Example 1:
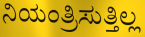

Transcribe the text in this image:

ನಿಯಂತ್ರಿಸುತ್ತಿಲ್ಲ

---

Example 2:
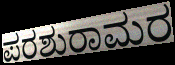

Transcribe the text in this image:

ಪರಶುರಾಮರ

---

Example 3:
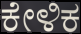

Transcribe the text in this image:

ಕೇಳಿಕ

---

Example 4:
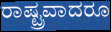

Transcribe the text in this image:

ರಾಷ್ಟ್ರವಾದರೂ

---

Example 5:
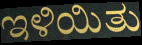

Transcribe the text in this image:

ಇಳಿಯಿತು